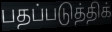
பதப்படுத்திக்